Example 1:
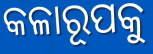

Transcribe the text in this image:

କଳାରୂପକୁ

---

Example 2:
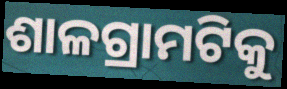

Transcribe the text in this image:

ଶାଳଗ୍ରାମଟିକୁ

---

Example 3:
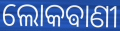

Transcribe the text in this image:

ଲୋକଵାଣୀ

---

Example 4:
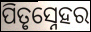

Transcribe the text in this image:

ପିତୃସ୍ନେହର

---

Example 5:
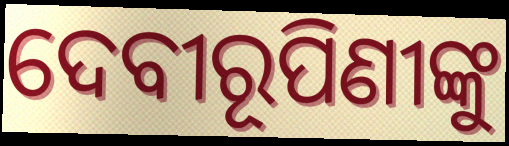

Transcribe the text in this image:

ଦେବୀରୂପିଣୀଙ୍କୁ